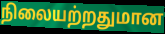
நிலையற்றதுமான